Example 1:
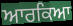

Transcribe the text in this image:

ਆਰਕਿਆ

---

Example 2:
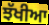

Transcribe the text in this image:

ਝੱਖੀਆ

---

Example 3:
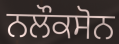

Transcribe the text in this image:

ਨਲੌਕਸੋਨ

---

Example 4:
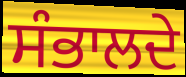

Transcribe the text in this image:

ਸੰਭਾਲਦੇ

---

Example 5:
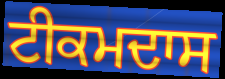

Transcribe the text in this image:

ਟੀਕਮਦਾਸ